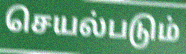
செயல்படும்